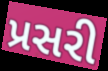
પ્રસરી